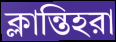
ক্লান্তিহরা